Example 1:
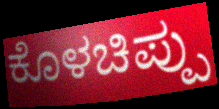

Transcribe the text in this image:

ಕೊಳಚಿಪ್ಪು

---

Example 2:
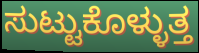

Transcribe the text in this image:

ಸುಟ್ಟುಕೊಳ್ಳುತ್ತ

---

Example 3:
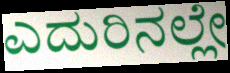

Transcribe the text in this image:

ಎದುರಿನಲ್ಲೇ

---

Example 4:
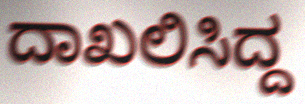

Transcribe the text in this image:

ದಾಖಲಿಸಿದ್ದ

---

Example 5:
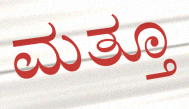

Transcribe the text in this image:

ಮತ್ತೂ